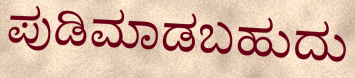
ಪುಡಿಮಾಡಬಹುದು